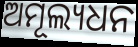
ଅମୂଲ୍ୟଧନ